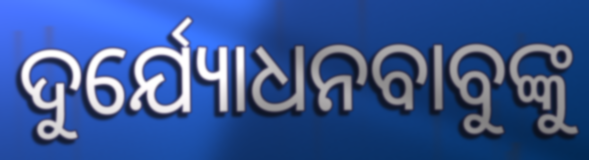
ଦୁର୍ଯ୍ୟୋଧନବାବୁଙ୍କୁ